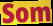
Som